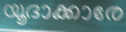
യൂദാക്കാരേ